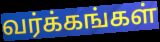
வர்க்கங்கள்